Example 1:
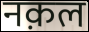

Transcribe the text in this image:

नक़ल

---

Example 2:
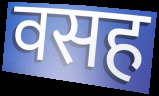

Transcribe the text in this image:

वसह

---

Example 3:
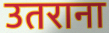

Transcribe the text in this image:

उतराना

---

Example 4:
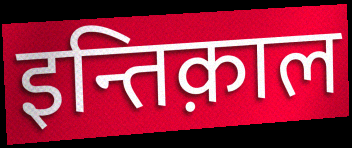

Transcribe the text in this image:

इन्तिक़ाल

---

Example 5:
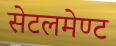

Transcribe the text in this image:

सेटलमेण्ट